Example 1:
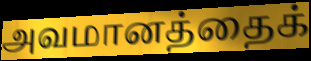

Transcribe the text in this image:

அவமானத்தைக்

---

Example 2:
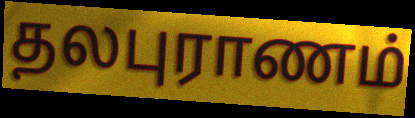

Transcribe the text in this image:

தலபுராணம்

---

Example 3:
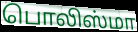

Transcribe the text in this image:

பொலிஸ்மா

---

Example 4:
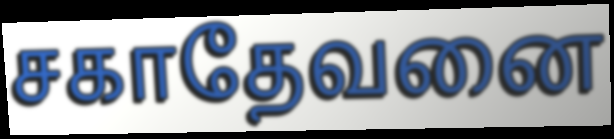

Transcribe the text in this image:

சகாதேவனை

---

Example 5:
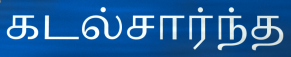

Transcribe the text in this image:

கடல்சார்ந்த